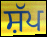
ਸ਼ੱਪ